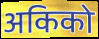
अकिको